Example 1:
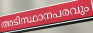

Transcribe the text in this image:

അടിസ്ഥാനപരവും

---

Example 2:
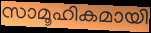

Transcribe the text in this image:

സാമൂഹികമായി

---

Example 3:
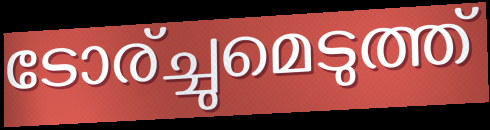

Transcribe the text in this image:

ടോര്ച്ചുമെടുത്ത്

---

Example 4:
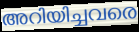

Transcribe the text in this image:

അറിയിച്ചവരെ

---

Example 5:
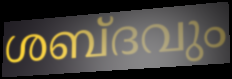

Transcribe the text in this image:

ശബ്ദവും